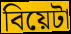
বিয়েটা